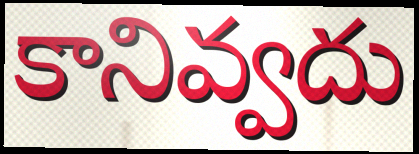
కానివ్వదు